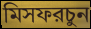
মিসফরচুন